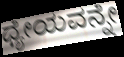
ಧ್ಯೇಯವನ್ನೇ